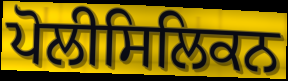
ਪੋਲੀਸਿਲਿਕਨ